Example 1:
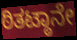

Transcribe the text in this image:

ಠಿತಟ್ಠಾನೇ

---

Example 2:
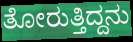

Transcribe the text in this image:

ತೋರುತ್ತಿದ್ದನು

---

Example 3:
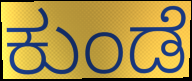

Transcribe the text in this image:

ಕುಂಡೆ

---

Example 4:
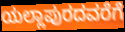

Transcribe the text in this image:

ಯಲ್ಲಾಪುರದವರೆಗೆ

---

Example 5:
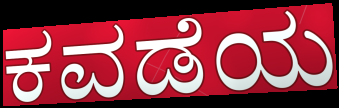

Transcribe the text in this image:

ಕವಡೆಯ